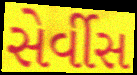
સેર્વીસ